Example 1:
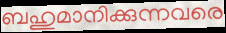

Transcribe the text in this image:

ബഹുമാനിക്കുന്നവരെ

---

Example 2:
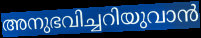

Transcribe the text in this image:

അനുഭവിച്ചറിയുവാൻ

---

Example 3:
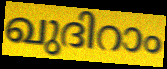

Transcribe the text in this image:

ഖുദിറാം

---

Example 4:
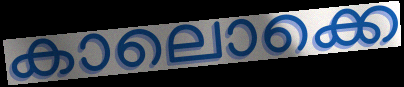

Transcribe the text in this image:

കാലൊക്കെ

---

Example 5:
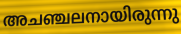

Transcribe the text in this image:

അചഞ്ചലനായിരുന്നു